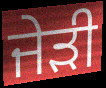
ਜੇੜੀ